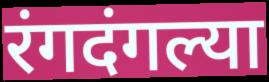
रंगदंगल्या